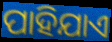
ପାହିଯାଏ